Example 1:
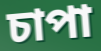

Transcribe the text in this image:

চাপা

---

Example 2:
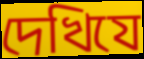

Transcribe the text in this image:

দেখিযে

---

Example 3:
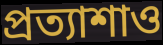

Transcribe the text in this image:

প্রত্যাশাও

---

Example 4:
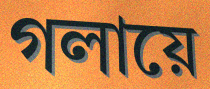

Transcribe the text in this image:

গলায়ে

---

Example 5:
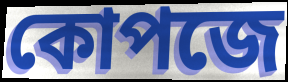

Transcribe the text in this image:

কোপজে